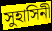
সুহাসিনী